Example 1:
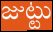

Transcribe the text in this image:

జుట్టు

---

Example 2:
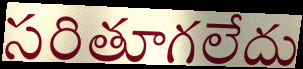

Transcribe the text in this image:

సరితూగలేదు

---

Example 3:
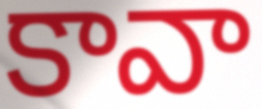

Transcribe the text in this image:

కావా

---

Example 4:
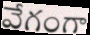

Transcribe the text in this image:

వేగంగా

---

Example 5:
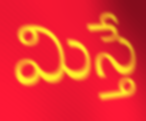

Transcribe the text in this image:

మిస్తే